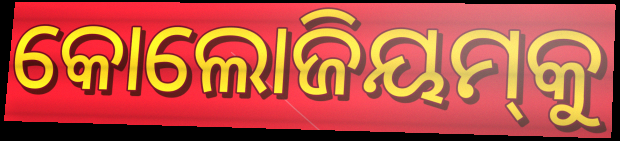
କୋଲୋଜିୟମ୍‍କୁ